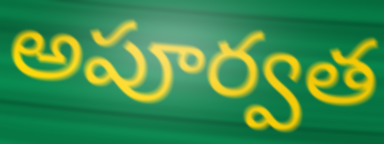
అపూర్వత